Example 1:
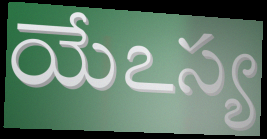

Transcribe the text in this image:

యేఽస్య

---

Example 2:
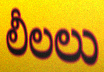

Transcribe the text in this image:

లీలలు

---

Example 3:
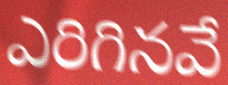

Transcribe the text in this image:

ఎరిగినవే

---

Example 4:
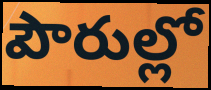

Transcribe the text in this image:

పౌరుల్లో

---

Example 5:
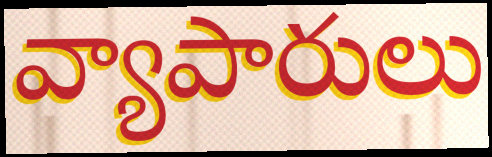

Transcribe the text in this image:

వ్యాపారులు